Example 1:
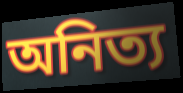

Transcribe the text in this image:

অনিত্য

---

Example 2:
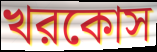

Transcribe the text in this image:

খরকোস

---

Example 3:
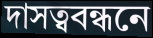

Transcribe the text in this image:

দাসত্ববন্ধনে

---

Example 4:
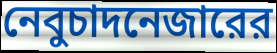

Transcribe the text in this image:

নেবুচাদনেজারের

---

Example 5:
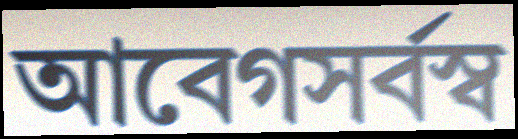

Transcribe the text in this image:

আবেগসর্বস্ব